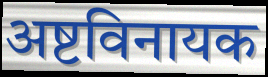
अष्टविनायक